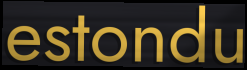
estondu